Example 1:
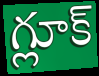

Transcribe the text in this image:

గ్లూక్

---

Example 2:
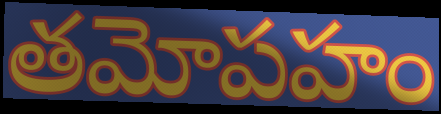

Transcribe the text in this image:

తమోపహం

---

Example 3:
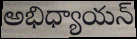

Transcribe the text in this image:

అభిధ్యాయన్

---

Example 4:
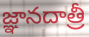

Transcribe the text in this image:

జ్ఞానదాత్రీ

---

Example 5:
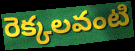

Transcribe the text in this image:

రెక్కలవంటి